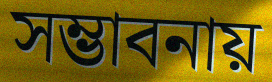
সম্ভাবনায়